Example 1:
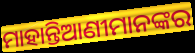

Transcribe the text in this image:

ମାହାନ୍ତିଆଣୀମାନଙ୍କର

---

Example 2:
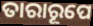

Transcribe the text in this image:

ତାରାରୂପେ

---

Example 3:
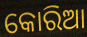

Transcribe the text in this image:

କୋରିଆ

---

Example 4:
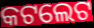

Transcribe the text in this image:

କଟଲେଟ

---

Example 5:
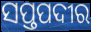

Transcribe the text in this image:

ସପ୍ତପଦୀର